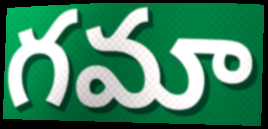
గమా